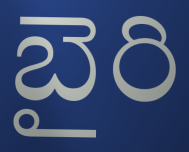
బైరి